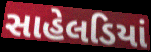
સાહેલડિયાં